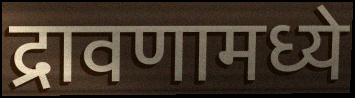
द्रावणामध्ये